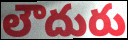
లౌదురు